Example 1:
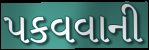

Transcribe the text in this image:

પકવવાની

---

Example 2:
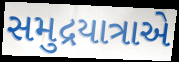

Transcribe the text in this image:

સમુદ્રયાત્રાએ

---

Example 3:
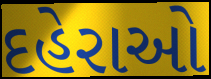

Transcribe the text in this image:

દહેરાઓ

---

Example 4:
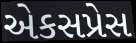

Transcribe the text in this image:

એકસપ્રેસ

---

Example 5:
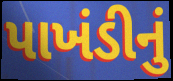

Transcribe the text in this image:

પાખંડીનું